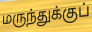
மருந்துக்குப்